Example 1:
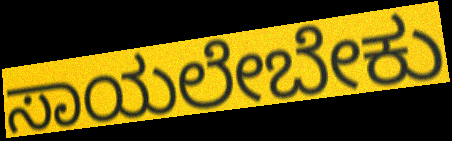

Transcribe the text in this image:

ಸಾಯಲೇಬೇಕು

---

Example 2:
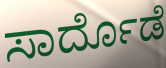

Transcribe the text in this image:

ಸಾರ್ದೊಡೆ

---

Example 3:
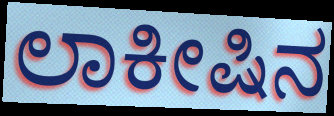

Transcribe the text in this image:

ಲಾಕೀಷಿನ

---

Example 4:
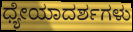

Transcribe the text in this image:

ಧ್ಯೇಯಾದರ್ಶಗಳು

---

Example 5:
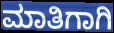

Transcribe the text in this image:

ಮಾತಿಗಾಗಿ